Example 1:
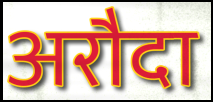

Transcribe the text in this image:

अरौदा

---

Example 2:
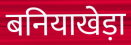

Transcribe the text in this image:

बनियाखेड़ा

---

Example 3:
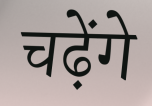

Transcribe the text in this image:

चढ़ेंगे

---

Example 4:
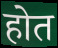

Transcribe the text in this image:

होत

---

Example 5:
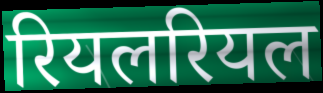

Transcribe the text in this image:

रियलरियल